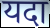
यदा